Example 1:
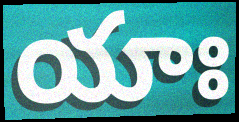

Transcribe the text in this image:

యాః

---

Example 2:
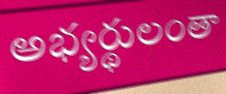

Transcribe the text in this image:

అభ్యర్థులంతా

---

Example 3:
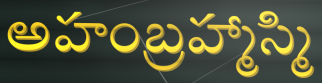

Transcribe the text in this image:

అహంబ్రహ్మాస్మి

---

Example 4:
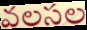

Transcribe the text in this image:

వలసల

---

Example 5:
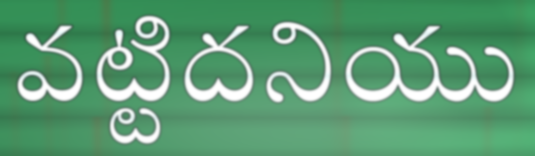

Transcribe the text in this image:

వట్టిదనియు